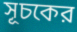
সূচকের